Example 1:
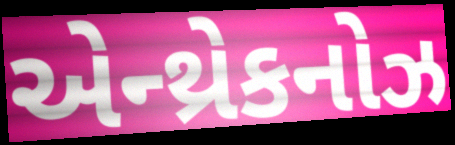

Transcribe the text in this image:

એન્થ્રેકનોઝ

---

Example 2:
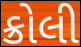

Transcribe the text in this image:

ક્રોલી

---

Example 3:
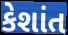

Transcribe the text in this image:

કેશાંત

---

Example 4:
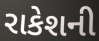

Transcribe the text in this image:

રાકેશની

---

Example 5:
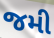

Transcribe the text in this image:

જમી